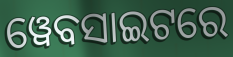
ୱେବସାଇଟରେ